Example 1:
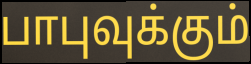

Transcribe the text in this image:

பாபுவுக்கும்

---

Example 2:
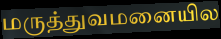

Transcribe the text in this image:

மருத்துவமனையில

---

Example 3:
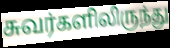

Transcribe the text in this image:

சுவர்களிலிருந்து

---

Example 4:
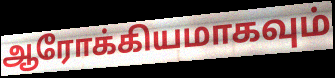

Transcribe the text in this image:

ஆரோக்கியமாகவும்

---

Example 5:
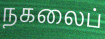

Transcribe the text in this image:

நகலைப்